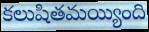
కలుషితమయ్యింది